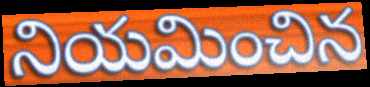
నియమించిన